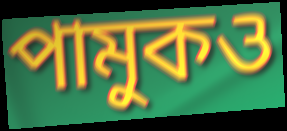
পামুকও